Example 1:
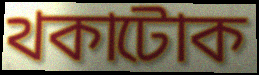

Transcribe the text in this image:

থকাটোক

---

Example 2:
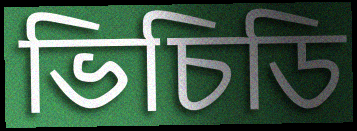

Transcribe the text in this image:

ভিচিডি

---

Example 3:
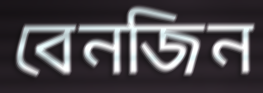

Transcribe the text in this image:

বেনজিন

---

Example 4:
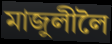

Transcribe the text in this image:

মাজুলীলৈ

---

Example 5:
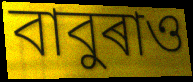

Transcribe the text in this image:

বাবুৰাও